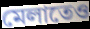
মেলাতেও